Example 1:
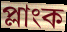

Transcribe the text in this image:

প্লাংক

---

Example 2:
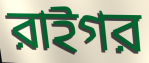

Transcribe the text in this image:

রাইগর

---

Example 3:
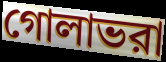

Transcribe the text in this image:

গোলাভরা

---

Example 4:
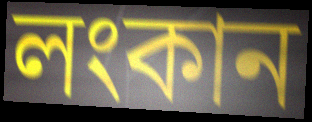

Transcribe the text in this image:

লংকান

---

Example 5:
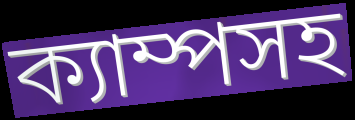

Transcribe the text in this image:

ক্যাম্পসহ